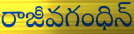
రాజీవగంధిన్